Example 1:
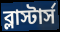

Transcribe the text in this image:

ব্লাস্টার্স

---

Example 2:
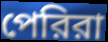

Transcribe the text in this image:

পেরিরা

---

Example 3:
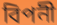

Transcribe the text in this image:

বিপনী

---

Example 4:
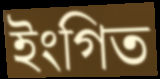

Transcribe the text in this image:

ইংগিত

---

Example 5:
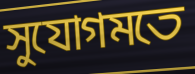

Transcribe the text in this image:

সুযোগমতে